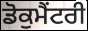
ਡੋਕੁਮੈਂਟਰੀ